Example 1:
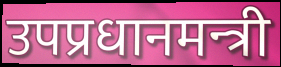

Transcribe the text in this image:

उपप्रधानमन्त्री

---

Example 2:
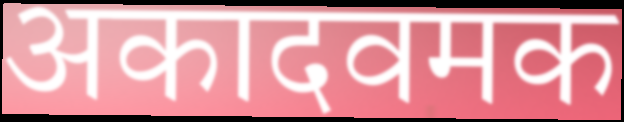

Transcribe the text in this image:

अकादवमक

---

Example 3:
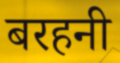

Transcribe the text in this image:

बरहनी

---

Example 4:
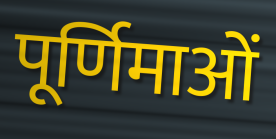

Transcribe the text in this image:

पूर्णिमाओं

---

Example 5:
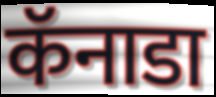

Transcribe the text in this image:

कॅनाडा